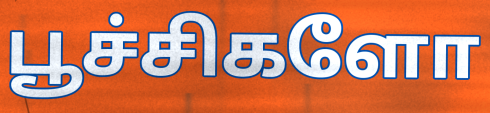
பூச்சிகளோ